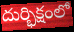
దుర్భిక్షంలో